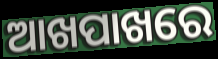
ଆଖପାଖରେ